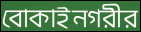
বোকাইনগরীর